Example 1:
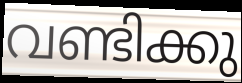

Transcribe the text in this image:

വണ്ടിക്കു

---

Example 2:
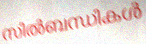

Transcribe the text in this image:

സിൽബന്ധികൾ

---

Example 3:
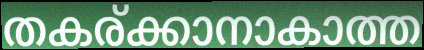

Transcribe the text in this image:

തകര്ക്കാനാകാത്ത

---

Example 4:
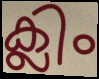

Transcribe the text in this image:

ക്ലിം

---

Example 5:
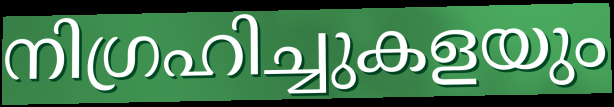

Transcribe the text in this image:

നിഗ്രഹിച്ചുകളയും